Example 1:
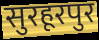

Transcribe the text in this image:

सुरहूरपुर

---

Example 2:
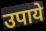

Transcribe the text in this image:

उपाये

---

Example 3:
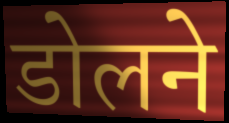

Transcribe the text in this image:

डोलने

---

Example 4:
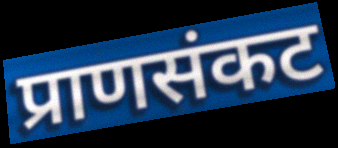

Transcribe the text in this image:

प्राणसंकट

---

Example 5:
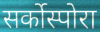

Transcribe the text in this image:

सर्कोस्पोरा